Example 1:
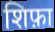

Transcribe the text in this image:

शिफ़ा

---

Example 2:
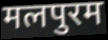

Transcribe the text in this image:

मलपुरम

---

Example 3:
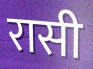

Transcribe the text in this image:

रासी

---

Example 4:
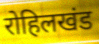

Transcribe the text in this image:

रोहिलखंड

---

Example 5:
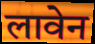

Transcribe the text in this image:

लावेन